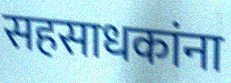
सहसाधकांना